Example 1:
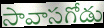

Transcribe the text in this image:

సావాసగోడు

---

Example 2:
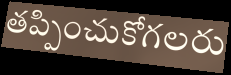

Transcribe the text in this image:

తప్పించుకోగలరు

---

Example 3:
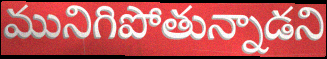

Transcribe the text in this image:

మునిగిపోతున్నాడని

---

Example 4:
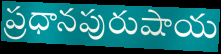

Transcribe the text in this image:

ప్రధానపురుషాయ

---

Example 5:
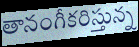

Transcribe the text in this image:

తానంగీకరిస్తున్న